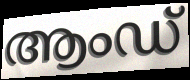
ആംഡ്